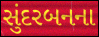
સુંદરબનના